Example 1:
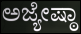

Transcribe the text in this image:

ಅಜ್ಯೇಷ್ಠಾ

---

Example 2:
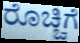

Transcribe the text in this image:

ರೊಚ್ಚಿಗೆ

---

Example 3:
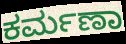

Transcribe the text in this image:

ಕರ್ಮಣಾ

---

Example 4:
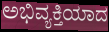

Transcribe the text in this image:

ಅಭಿವ್ಯಕ್ತಿಯಾದ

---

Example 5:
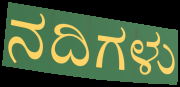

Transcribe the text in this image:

ನದಿಗಳು